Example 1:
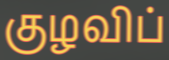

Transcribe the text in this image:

குழவிப்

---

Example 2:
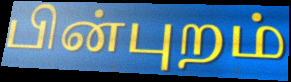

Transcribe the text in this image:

பின்புறம்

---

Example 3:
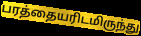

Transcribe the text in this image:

பரத்தையரிடமிருந்து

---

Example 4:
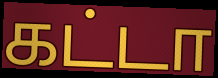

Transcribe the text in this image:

கட்டா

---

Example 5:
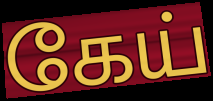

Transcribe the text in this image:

கேய்